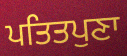
ਪਤਿਤਪੁਣਾ